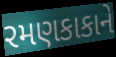
રમણકાકાને